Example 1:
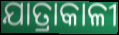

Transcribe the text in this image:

ଯାତ୍ରାକାଳୀ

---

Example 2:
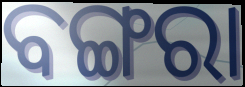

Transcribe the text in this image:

ବଙ୍ଗରା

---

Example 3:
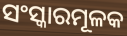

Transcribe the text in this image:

ସଂସ୍କାରମୂଳକ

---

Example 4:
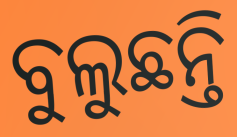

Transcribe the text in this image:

ବୁଲୁଛନ୍ତି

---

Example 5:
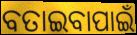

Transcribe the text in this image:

ବତାଇବାପାଇଁ